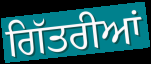
ਗਿੱਤਰੀਆਂ